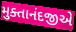
મુક્તાનંદજીએ